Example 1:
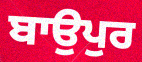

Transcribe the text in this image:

ਬਾਉਪੁਰ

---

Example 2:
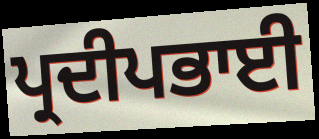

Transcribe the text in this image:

ਪ੍ਰਦੀਪਭਾਈ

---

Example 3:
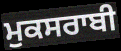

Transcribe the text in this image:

ਮੁਕਸਰਾਬੀ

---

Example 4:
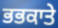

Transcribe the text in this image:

ਭਭਕਾਤੇ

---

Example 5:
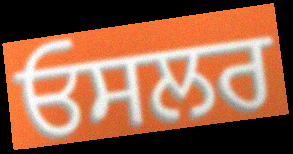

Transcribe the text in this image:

ਓਸਲਰ